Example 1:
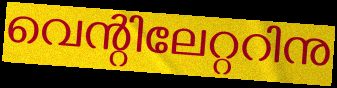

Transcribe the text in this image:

വെന്റിലേറ്ററിനു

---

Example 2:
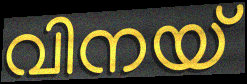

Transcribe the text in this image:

വിനയ്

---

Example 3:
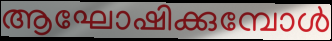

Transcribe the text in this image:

ആഘോഷിക്കുമ്പോൾ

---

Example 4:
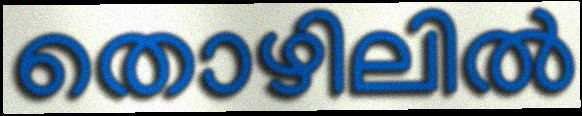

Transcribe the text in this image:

തൊഴിലിൽ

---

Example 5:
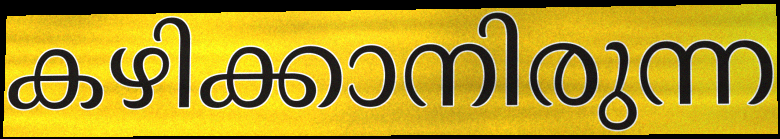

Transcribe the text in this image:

കഴിക്കാനിരുന്ന